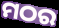
ମଠର